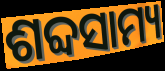
ଶବ୍ଦସାମ୍ୟ